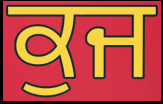
ਕੁਜ